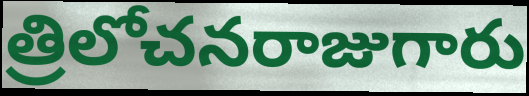
త్రిలోచనరాజుగారు